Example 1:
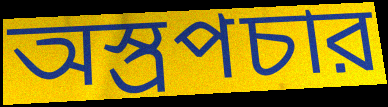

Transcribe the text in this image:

অস্ত্রপচার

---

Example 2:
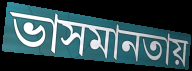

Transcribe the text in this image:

ভাসমানতায়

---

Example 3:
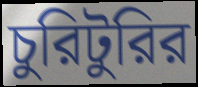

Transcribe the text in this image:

চুরিটুরির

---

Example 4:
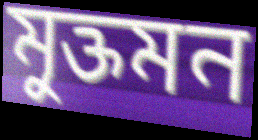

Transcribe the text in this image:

মুক্তমন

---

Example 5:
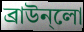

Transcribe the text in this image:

ব্রাউন্লো